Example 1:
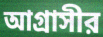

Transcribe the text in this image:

আগ্রাসীর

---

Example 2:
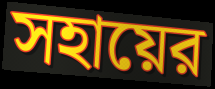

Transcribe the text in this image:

সহায়ের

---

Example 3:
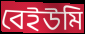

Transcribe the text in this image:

বেইউমি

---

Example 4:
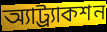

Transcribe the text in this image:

অ্যাট্র্যাকশন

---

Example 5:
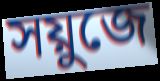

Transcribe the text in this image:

সয়ুজে